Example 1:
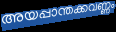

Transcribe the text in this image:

അയപ്പാന്തക്കവണ്ണം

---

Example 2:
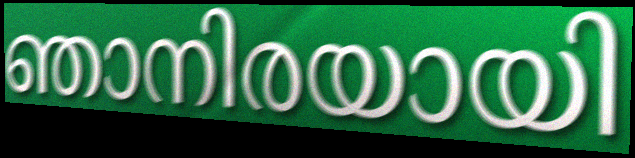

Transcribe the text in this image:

ഞാനിരയായി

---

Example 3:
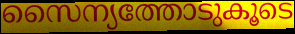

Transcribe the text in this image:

സൈന്യത്തോടുകൂടെ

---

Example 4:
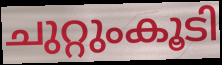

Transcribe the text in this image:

ചുറ്റുംകൂടി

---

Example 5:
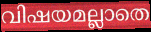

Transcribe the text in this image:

വിഷയമല്ലാതെ